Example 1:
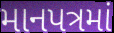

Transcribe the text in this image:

માનપત્રમાં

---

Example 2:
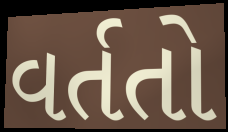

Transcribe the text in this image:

વર્તતો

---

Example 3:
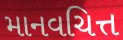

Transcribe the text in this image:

માનવચિત્ત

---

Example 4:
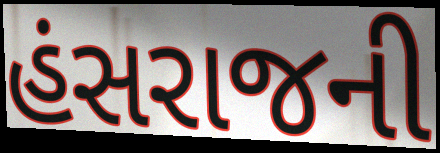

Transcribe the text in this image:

હંસરાજની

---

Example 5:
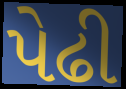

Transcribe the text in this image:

પેઢી